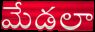
మేడలా